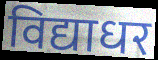
विद्याधर